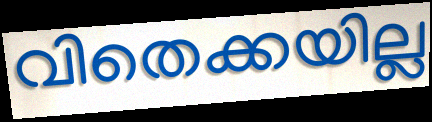
വിതെക്കയില്ല